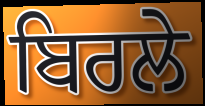
ਬਿਰਲੇ